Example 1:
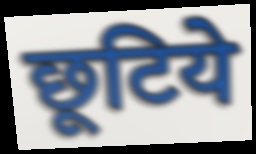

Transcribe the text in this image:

छूटिये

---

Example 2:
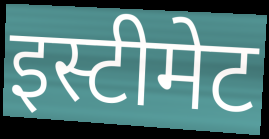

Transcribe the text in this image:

इस्टीमेट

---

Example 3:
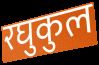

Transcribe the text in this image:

रघुकुल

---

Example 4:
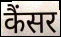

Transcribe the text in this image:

कैंसर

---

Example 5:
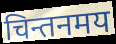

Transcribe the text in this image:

चिन्तनमय